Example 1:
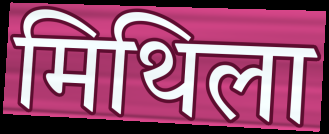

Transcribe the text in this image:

मिथिला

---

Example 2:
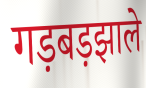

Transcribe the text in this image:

गड़बड़झाले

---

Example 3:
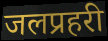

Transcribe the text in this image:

जलप्रहरी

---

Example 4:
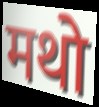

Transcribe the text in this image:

मथो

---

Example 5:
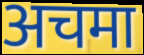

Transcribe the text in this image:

अचमा